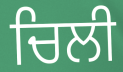
ਚਿਲੀ